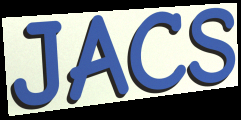
JACS